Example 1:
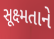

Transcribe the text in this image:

સૂક્ષ્મતાને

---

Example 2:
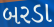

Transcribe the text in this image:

બરડા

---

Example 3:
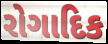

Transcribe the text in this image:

રોગાદિક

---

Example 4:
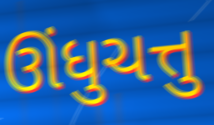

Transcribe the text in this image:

ઊંધુચત્તુ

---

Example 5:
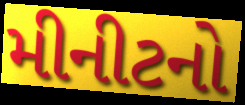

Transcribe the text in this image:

મીનીટનો